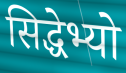
सिद्धेभ्यो